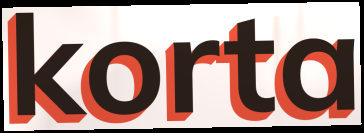
korta